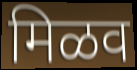
मिळव